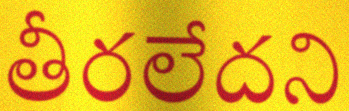
తీరలేదని